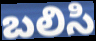
బలిసి